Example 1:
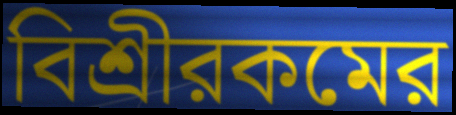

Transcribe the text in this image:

বিশ্রীরকমের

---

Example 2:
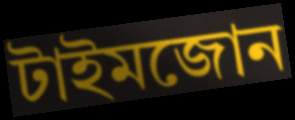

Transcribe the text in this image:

টাইমজোন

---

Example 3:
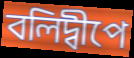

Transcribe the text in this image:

বলিদ্বীপে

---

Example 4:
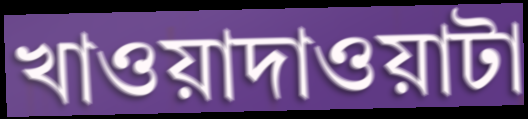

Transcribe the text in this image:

খাওয়াদাওয়াটা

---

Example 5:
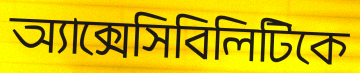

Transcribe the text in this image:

অ্যাক্সেসিবিলিটিকে